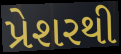
પ્રેશરથી